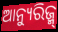
ଆନ୍ୟୁରିଜ୍ମ୍